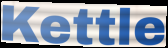
Kettle